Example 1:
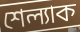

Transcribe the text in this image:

শেল্যাক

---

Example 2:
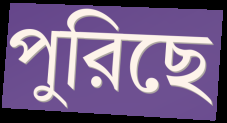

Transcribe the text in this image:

পুরিছে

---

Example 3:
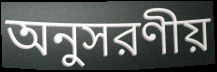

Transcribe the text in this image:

অনুসরণীয়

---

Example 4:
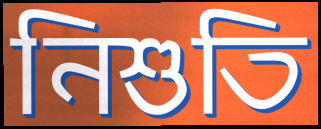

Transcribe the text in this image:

নিশুতি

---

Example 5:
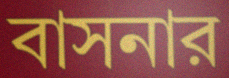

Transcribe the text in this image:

বাসনার